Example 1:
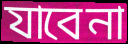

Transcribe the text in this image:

যাবেনা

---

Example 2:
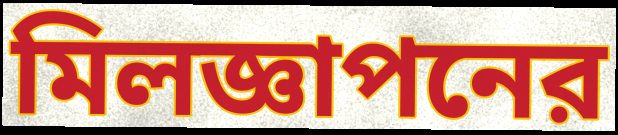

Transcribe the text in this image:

মিলজ্ঞাপনের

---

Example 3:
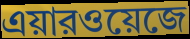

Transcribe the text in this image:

এয়ারওয়েজে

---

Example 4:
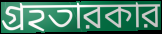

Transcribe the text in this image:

গ্রহতারকার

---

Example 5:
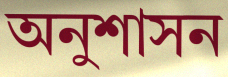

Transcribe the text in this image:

অনুশাসন